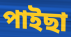
পাইছা